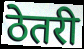
ठेतरी